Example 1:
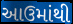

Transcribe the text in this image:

આઉમાંથી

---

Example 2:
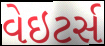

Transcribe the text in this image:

વેઇટર્સ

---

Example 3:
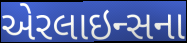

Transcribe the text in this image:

એરલાઇન્સના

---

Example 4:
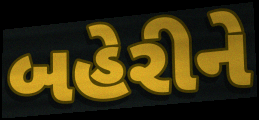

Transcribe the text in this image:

બહેરીને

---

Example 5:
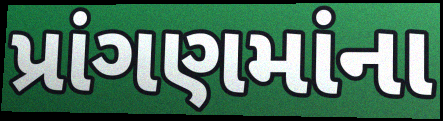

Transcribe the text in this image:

પ્રાંગણમાંના